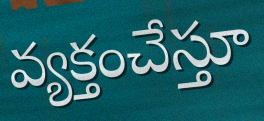
వ్యక్తంచేస్తూ